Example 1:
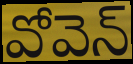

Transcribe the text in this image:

వోవెన్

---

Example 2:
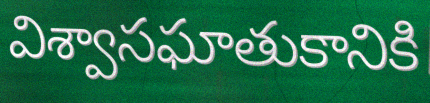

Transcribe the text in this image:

విశ్వాసఘాతుకానికి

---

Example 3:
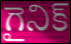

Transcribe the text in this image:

గైనిక్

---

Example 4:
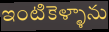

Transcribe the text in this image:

ఇంటికెళ్ళాను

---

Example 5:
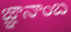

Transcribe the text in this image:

జ్ఞానాంబ